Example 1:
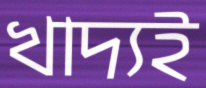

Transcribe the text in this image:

খাদ্যই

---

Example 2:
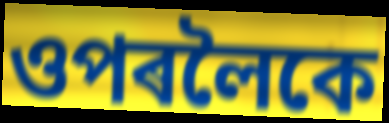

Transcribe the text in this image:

ওপৰলৈকে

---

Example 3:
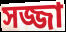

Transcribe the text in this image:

সজ্জা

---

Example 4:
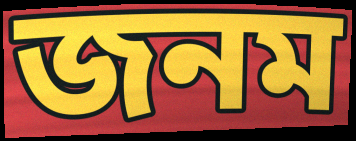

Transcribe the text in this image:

জনম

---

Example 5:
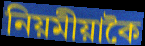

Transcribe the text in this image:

নিয়মীয়াকৈ